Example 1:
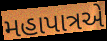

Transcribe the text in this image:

મહાપાત્રએ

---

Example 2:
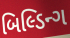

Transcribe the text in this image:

બિલ્ડિન્ગ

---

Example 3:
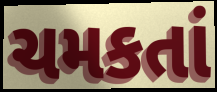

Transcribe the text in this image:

ચમકતાં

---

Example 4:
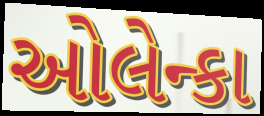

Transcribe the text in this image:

ઓલેન્કા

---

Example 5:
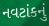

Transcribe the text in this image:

નવટાંકનું